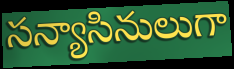
సన్యాసినులుగా